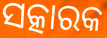
ସତ୍କାରକ